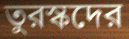
তুরস্কদের